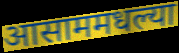
आसाममधल्या